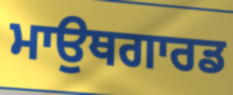
ਮਾਉਥਗਾਰਡ